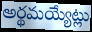
అర్థమయ్యేట్లు